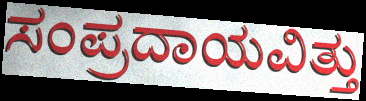
ಸಂಪ್ರದಾಯವಿತ್ತು